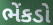
ભેંકડો